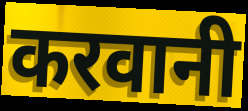
करवानी